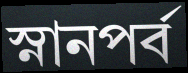
স্নানপর্ব